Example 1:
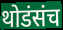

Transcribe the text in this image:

थोडंसंच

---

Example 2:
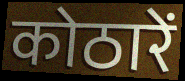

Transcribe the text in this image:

कोठारें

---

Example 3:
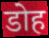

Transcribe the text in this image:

डोह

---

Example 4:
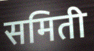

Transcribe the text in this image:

समिती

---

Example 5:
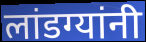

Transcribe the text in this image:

लांडग्यांनी